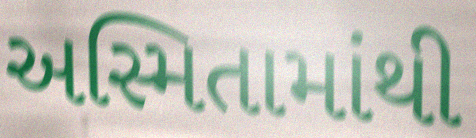
અસ્મિતામાંથી